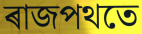
ৰাজপথতে